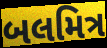
બલમિત્ર